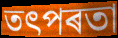
তৎপৰতা